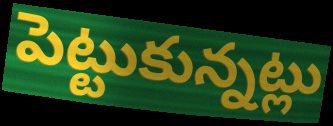
పెట్టుకున్నట్లు